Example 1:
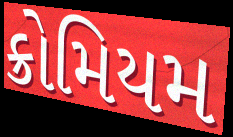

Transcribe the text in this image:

ક્રોમિયમ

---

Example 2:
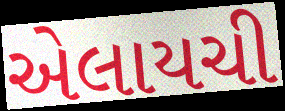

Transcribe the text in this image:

એલાયચી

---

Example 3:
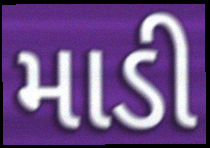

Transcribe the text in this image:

માડી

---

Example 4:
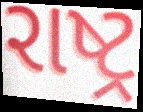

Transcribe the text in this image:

રાષ્ટ્ર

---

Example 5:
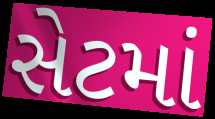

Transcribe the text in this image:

સેટમાં